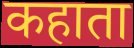
कहाता